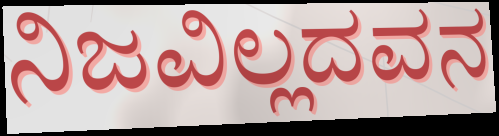
ನಿಜವಿಲ್ಲದವನ